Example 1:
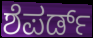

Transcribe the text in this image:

ಶೆಪರ್ಡ್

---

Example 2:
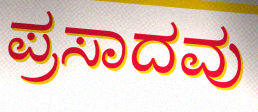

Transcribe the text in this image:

ಪ್ರಸಾದವು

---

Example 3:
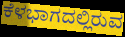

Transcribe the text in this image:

ಕೆಳಭಾಗದಲ್ಲಿರುವ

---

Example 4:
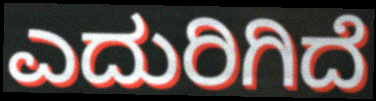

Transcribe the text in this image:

ಎದುರಿಗಿದೆ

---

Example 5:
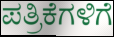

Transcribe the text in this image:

ಪತ್ರಿಕೆಗಳಿಗೆ